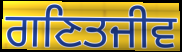
ਗਣਿਤਜੀਵ